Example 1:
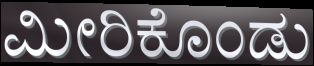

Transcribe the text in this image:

ಮೀರಿಕೊಂಡು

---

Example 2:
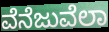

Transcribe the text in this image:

ವೆನೆಜುವೆಲಾ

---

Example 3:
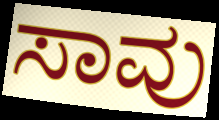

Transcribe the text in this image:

ಸಾವು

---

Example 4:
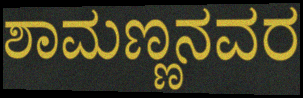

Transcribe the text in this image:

ಶಾಮಣ್ಣನವರ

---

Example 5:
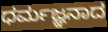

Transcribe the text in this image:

ಧರ್ಮಜ್ಞನಾದ